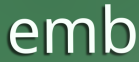
emb